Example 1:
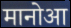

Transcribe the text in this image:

मानोआ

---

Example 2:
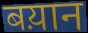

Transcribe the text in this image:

बय़ान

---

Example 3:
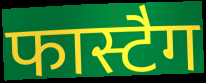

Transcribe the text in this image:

फास्‍टैग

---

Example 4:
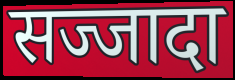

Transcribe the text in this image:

सज्जादा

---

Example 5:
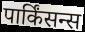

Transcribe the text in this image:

पार्किंसन्स